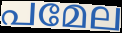
പമേല